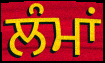
ਲੰਮਾਂ